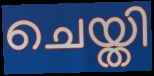
ചെയ്തി